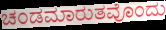
ಚಂಡಮಾರುತವೊಂದು